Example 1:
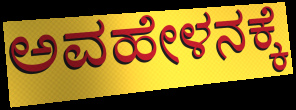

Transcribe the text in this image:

ಅವಹೇಳನಕ್ಕೆ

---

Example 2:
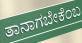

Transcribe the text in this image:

ತಾನಾಗಬೇಕೆಂಬ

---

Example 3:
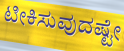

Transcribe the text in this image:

ಟೀಕಿಸುವುದಷ್ಟೇ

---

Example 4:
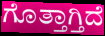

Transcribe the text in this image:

ಗೊತ್ತಾಗ್ತಿದೆ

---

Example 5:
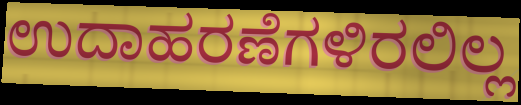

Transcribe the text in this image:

ಉದಾಹರಣೆಗಳಿರಲಿಲ್ಲ